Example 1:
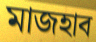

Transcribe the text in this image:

মাজহাব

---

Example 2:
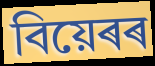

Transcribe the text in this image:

বিয়েৰৰ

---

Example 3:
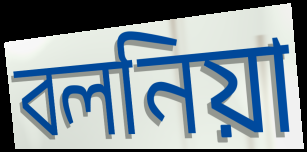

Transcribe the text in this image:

বলনিয়া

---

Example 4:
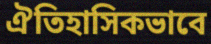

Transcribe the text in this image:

ঐতিহাসিকভাবে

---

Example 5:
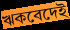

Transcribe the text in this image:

ঋকবেদেই